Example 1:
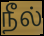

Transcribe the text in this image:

நீல்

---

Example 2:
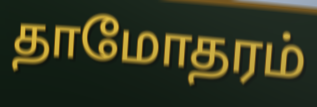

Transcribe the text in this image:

தாமோதரம்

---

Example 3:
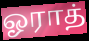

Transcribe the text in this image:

ஓராத்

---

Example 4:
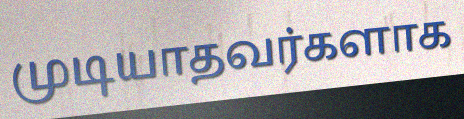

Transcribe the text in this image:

முடியாதவர்களாக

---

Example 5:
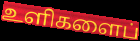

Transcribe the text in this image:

உளிகளைப்